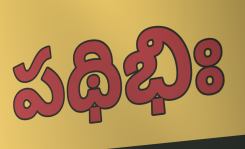
పథిభిః